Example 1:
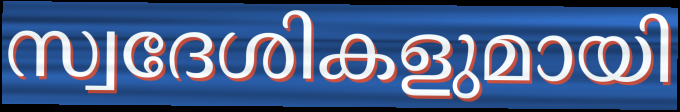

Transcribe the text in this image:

സ്വദേശികളുമായി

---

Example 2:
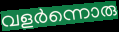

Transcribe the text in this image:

വളർന്നൊരു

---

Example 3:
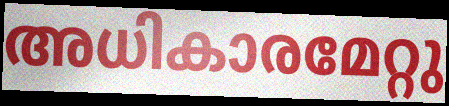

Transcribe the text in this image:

അധികാരമേറ്റു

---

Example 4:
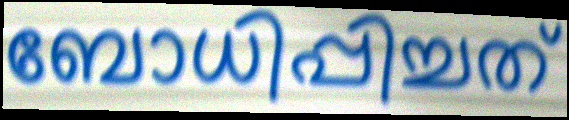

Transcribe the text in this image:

ബോധിപ്പിച്ചത്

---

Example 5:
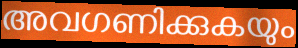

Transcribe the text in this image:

അവഗണിക്കുകയും